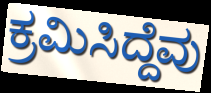
ಕ್ರಮಿಸಿದ್ದೆವು